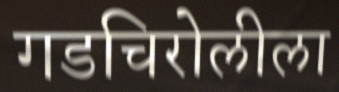
गडचिरोलीला